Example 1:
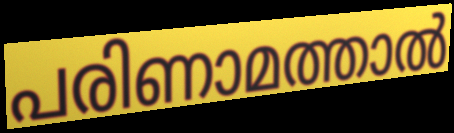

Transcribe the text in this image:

പരിണാമത്താൽ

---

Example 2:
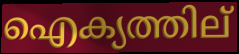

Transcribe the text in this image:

ഐക്യത്തില്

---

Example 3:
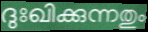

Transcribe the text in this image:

ദുഃഖിക്കുന്നതും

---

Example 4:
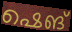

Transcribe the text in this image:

ഷെങ്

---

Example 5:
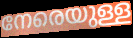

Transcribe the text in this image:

നേരെയുള്ള